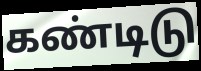
கண்டிடு